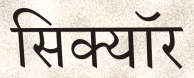
सिक्यॉर